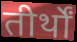
तीर्थों